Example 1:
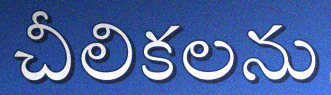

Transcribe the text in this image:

చీలికలను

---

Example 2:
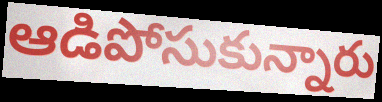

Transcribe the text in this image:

ఆడిపోసుకున్నారు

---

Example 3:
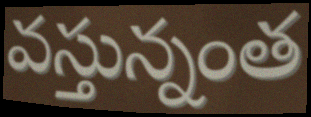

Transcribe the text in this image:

వస్తున్నంత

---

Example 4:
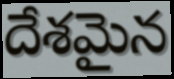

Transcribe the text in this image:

దేశమైన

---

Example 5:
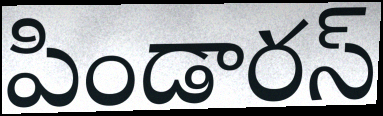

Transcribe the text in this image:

పిండారస్